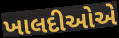
ખાલદીઓએ